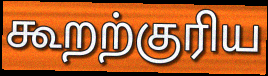
கூறற்குரிய